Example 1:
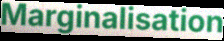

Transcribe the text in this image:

Marginalisation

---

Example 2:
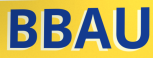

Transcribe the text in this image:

BBAU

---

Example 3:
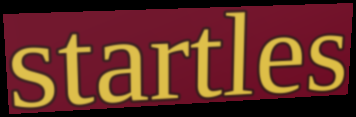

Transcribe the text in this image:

startles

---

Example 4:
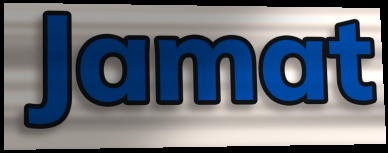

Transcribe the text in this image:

Jamat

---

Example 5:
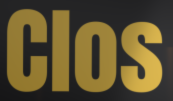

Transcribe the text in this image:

Clos